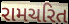
રામચરિત